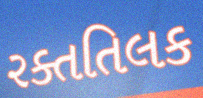
રક્તતિલક